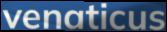
venaticus